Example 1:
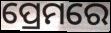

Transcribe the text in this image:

ପ୍ରେମରେ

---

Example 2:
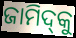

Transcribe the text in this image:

ଜାମିଦ୍‌କୁ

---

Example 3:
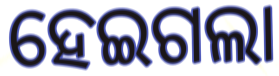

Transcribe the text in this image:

ହେଇଗଲା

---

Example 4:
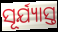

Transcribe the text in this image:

ସୂର୍ଯ୍ୟାସ୍ତ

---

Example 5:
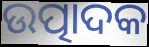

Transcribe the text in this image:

ଉତ୍ପାଦକ